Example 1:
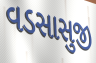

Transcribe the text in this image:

વડસાસુજી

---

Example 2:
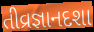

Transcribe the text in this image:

તીવ્રજ્ઞાનદશા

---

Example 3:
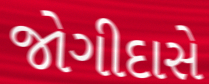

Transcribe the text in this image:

જોગીદાસે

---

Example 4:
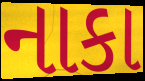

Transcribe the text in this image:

નાકા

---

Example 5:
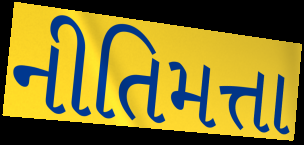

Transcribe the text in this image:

નીતિમત્તા